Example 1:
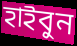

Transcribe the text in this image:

হাইবুন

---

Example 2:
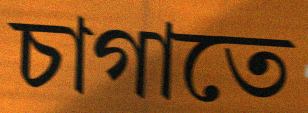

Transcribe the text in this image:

চাগাতে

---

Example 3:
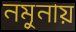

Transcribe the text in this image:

নমুনায়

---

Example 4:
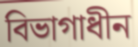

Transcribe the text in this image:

বিভাগাধীন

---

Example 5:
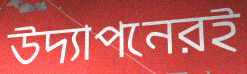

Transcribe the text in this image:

উদ্যাপনেরই